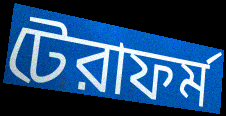
টেরাফর্ম